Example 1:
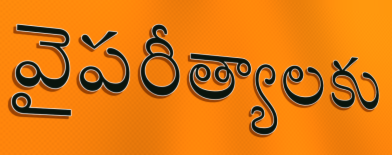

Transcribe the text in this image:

వైపరీత్యాలకు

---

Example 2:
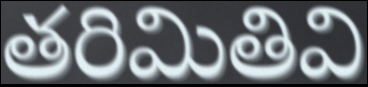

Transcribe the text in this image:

తరిమితివి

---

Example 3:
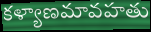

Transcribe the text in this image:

కళ్యాణమావహతు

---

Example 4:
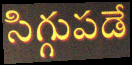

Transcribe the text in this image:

సిగ్గుపడే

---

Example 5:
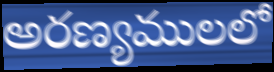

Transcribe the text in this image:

అరణ్యములలో